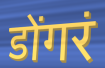
डोंगरं